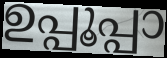
ഉപ്പൂപ്പാ